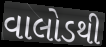
વાલોડથી